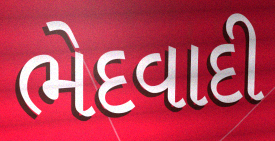
ભેદવાદી